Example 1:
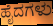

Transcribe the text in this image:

ಹೈದಗಳು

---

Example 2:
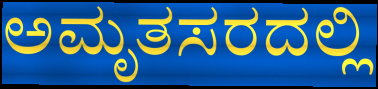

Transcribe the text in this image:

ಅಮೃತಸರದಲ್ಲಿ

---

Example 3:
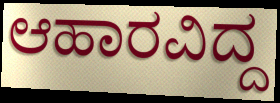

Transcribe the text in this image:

ಆಹಾರವಿದ್ದ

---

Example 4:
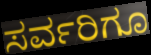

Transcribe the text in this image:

ಸರ್ವರಿಗೂ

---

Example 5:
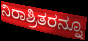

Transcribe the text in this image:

ನಿರಾಶ್ರಿತರನ್ನೂ